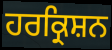
ਹਰਕ੍ਰਿਸ਼ਨ